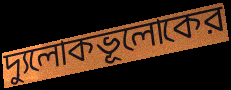
দ্যুলোকভূলোকের